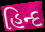
હિન્દ